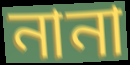
নানা